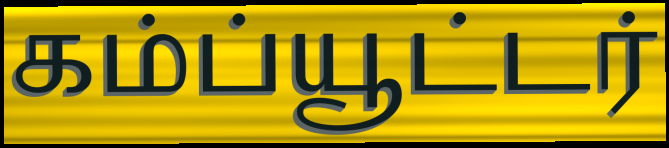
கம்ப்யூட்டர்